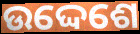
ଉଦ୍ଦେଶେ